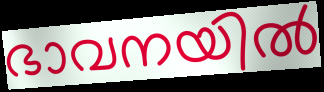
ഭാവനയിൽ